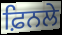
ਫ਼ਿਨਲੇ